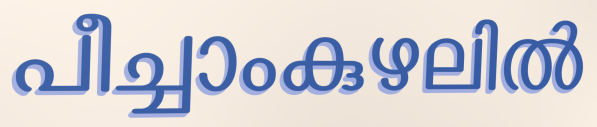
പീച്ചാംകുഴലിൽ